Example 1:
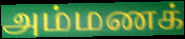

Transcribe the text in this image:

அம்மணக்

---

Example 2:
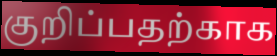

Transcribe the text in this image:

குறிப்பதற்காக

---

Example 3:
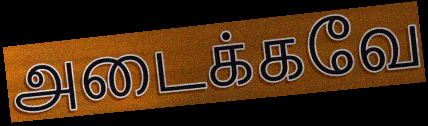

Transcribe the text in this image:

அடைக்கவே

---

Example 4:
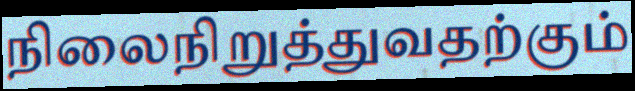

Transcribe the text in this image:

நிலைநிறுத்துவதற்கும்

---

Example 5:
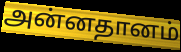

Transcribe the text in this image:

அன்னதானம்